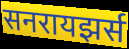
सनरायझर्स